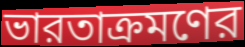
ভারতাক্রমণের